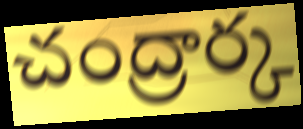
చంద్రార్క